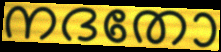
നദതോ